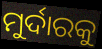
ମୁର୍ଦାରକୁ